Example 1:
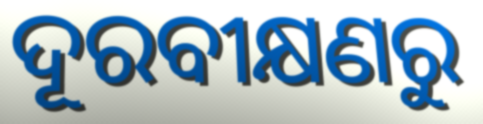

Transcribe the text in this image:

ଦୂରବୀକ୍ଷଣରୁ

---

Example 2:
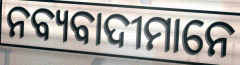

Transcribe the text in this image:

ନବ୍ୟବାଦୀମାନେ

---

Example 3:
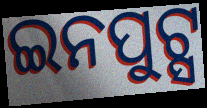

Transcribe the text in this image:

ଇନପୁଟ୍ସ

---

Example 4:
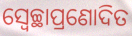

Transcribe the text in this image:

ସ୍ୱେଚ୍ଛାପ୍ରଣୋଦିତ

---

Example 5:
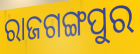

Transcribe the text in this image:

ରାଜଗଙ୍ଗପୁର